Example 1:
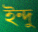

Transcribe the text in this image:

ইন্দু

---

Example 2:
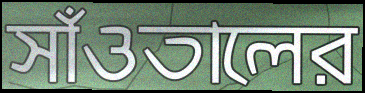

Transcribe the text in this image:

সাঁওতালের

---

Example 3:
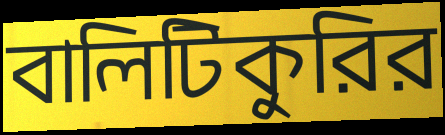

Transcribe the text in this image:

বালিটিকুরির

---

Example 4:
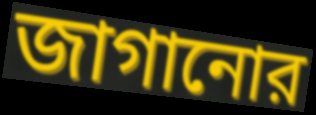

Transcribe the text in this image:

জাগানোর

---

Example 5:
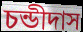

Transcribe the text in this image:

চন্ডীদাস